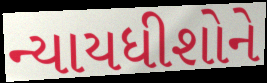
ન્યાયધીશોને